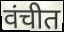
वंचीत